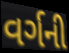
વર્ગની